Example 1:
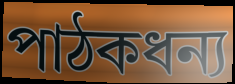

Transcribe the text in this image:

পাঠকধন্য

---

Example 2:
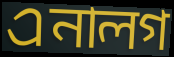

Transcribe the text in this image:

এনালগ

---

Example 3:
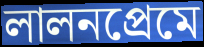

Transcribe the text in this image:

লালনপ্রেমে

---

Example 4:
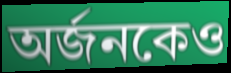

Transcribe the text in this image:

অর্জনকেও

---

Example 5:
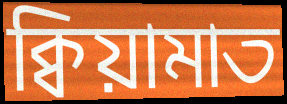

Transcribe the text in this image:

ক্বিয়ামাত